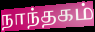
நாந்தகம்